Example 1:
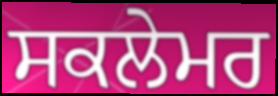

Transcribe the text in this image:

ਸਕਲੇਮਰ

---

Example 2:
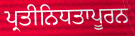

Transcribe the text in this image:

ਪ੍ਰਤੀਨਿਧਤਾਪੂਰਨ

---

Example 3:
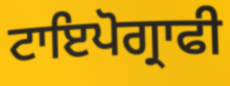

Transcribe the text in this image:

ਟਾਇਪੋਗ੍ਰਾਫੀ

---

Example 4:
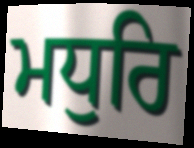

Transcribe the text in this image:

ਮਧੁਰਿ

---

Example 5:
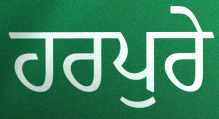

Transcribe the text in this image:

ਹਰਪੁਰੇ